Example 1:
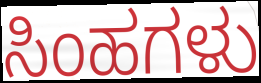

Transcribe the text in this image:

ಸಿಂಹಗಳು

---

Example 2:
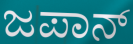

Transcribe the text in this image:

ಜಪಾನ್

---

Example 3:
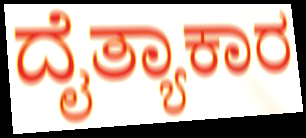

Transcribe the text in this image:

ದೈತ್ಯಾಕಾರ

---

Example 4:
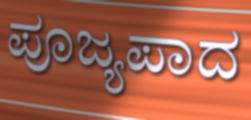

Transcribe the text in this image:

ಪೂಜ್ಯಪಾದ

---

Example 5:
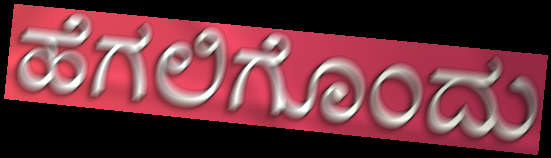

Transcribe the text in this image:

ಹೆಗಲಿಗೊಂದು